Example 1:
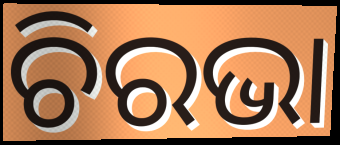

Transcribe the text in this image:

ଚିରଭା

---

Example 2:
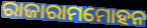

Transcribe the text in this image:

ରାଜାରାମମୋହନ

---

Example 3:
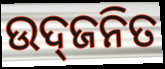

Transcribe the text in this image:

ଉଦ୍‌ଜନିତ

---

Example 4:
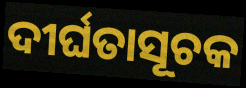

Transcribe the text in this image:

ଦୀର୍ଘତାସୂଚକ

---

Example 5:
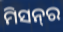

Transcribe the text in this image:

ମିସନ୍‌ର